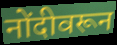
नोंदीवरून